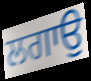
ਲਗਾਉੁ